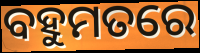
ବହୁମତରେ